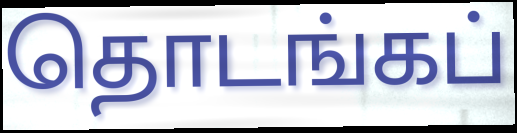
தொடங்கப்